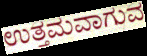
ಉತ್ತಮವಾಗುವ